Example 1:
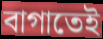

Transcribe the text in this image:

বাগাতেই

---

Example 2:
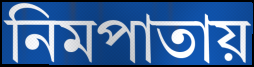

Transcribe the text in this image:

নিমপাতায়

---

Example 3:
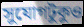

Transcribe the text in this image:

সুযোগটুকুও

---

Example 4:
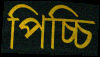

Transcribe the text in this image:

পিচ্চি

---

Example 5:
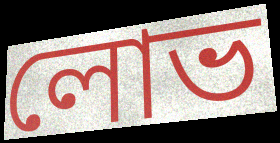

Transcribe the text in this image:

লোভ